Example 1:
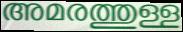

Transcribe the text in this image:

അമരത്തുള്ള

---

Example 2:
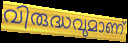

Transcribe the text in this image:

വിരുദ്ധവുമാണ്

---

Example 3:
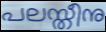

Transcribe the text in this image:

പലസ്തീനു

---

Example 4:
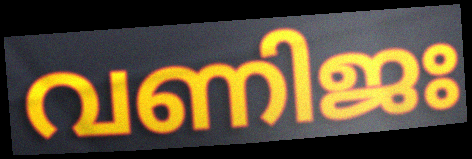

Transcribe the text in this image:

വണിജഃ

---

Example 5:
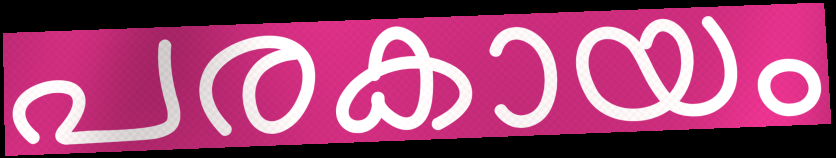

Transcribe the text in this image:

പരകായം